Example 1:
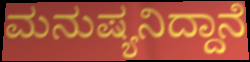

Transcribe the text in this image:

ಮನುಷ್ಯನಿದ್ದಾನೆ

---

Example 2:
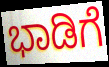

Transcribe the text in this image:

ಭಾಡಿಗೆ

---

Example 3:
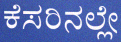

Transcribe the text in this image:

ಕೆಸರಿನಲ್ಲೇ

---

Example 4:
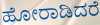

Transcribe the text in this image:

ಹೋರಾಡಿದರೆ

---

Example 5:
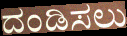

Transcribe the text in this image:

ದಂಡಿಸಲು